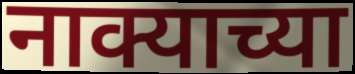
नाक्याच्या